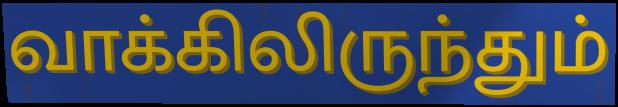
வாக்கிலிருந்தும்